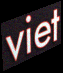
viet